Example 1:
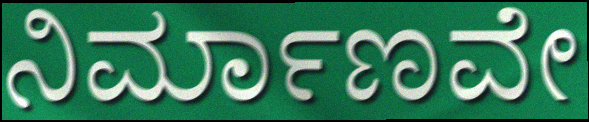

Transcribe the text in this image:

ನಿರ್ಮಾಣವೇ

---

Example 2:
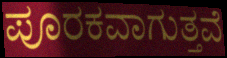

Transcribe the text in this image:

ಪೂರಕವಾಗುತ್ತವೆ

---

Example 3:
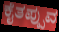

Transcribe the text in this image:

ಕೈತಪ್ಪುವ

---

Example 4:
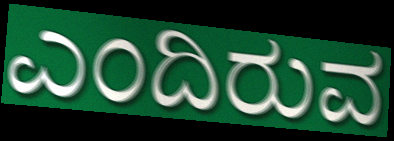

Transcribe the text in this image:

ಎಂದಿರುವ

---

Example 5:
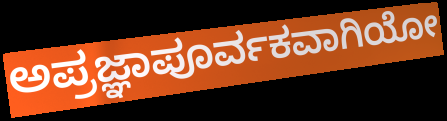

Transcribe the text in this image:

ಅಪ್ರಜ್ಞಾಪೂರ್ವಕವಾಗಿಯೋ